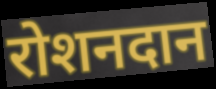
रोशनदान